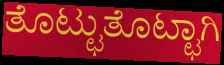
ತೊಟ್ಟುತೊಟ್ಟಾಗಿ